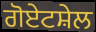
ਗੋਏਟਸ਼ੇਲ